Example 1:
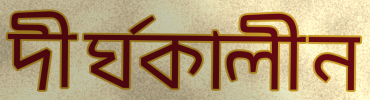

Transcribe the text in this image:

দীৰ্ঘকালীন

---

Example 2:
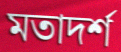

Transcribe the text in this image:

মতাদৰ্শ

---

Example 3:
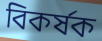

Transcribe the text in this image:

বিকৰ্ষক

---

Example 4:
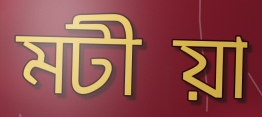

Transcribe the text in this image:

মটীয়া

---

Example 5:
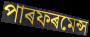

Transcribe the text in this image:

পাৰফৰমেন্স